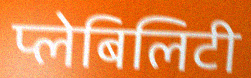
प्लेबिलिटी